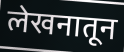
लेखनातून